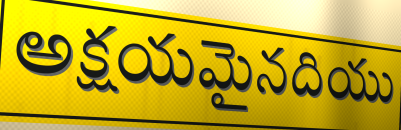
అక్షయమైనదియు